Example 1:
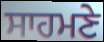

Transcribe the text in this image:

ਸਾਹਮਣੇ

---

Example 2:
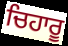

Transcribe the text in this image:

ਚਿਹਾਰੂ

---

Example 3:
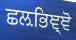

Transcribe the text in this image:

ਛਲ਼ਭਿਞ੍ਞੋ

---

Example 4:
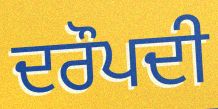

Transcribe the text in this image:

ਦਰੌਪਦੀ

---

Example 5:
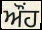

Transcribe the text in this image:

ਔਂਹ